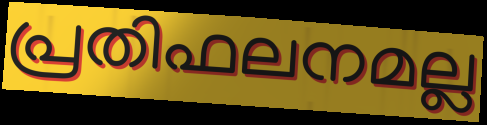
പ്രതിഫലനമല്ല